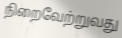
நிறைவேற்றுவது